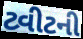
ટ્વીટની